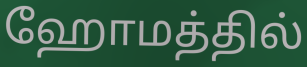
ஹோமத்தில்